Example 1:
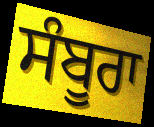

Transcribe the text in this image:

ਸੰਬੂਰਾ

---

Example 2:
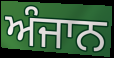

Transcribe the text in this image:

ਅੰਜਾਨ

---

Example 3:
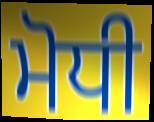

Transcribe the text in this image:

ਮੋਧੀ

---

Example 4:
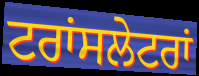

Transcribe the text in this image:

ਟਰਾਂਸਲੇਟਰਾਂ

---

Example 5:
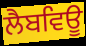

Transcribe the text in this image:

ਲੈਬਵਿਊ